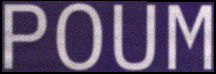
POUM